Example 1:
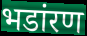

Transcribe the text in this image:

भडांरण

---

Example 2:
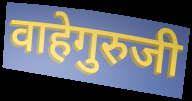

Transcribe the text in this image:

वाहेगुरुजी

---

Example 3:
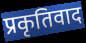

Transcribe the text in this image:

प्रकृतिवाद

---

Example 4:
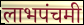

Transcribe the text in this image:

लाभपंचमी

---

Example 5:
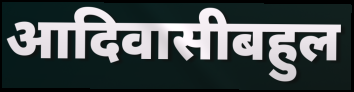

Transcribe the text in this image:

आदिवासीबहुल